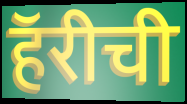
हॅरीची